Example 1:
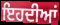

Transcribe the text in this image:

ਇਹਦੀਆਂ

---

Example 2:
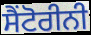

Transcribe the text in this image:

ਸੈਂਟੋਰੀਨੀ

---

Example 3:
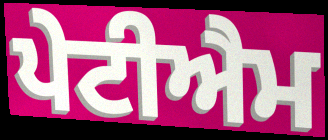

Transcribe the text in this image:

ਪੇਟੀਐਮ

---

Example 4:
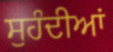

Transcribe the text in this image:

ਸੁਹੰਦੀਆਂ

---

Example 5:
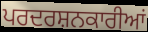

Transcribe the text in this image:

ਪਰਦਰਸ਼ਨਕਾਰੀਆਂ